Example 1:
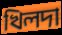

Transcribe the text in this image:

খিলদা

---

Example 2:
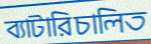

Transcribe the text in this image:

ব্যাটারিচালিত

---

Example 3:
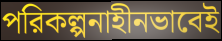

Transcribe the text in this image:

পরিকল্পনাহীনভাবেই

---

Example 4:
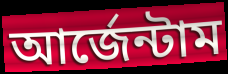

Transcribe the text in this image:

আর্জেন্টাম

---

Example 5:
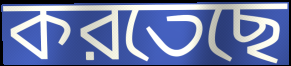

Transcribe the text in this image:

করতেছে